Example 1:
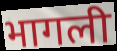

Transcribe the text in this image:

भागली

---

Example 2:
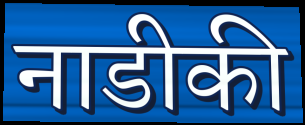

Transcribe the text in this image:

नाडीकी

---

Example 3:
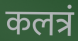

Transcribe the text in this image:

कलत्रं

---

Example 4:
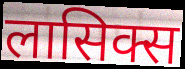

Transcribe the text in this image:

लासिक्स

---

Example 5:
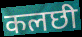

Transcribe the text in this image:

कलछी